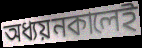
অধ্যয়নকালেই